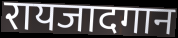
रायजादगान